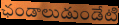
ఛండాలుడుండేటి